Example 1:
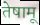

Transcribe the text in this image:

तेषामू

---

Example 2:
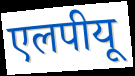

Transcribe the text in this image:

एलपीयू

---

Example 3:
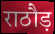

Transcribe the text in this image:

राठौड़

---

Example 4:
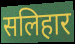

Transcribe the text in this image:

सलिहार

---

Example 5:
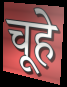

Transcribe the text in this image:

चूहे